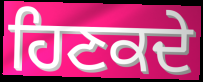
ਹਿਣਕਦੇ